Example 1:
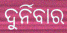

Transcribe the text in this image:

ଦୁର୍ନିବାର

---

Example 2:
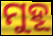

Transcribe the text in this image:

ମୁହୂ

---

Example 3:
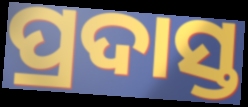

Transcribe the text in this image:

ପ୍ରଦାସ୍ତ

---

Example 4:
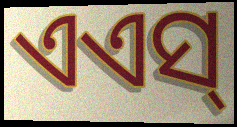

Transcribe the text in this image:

ଏଏସ୍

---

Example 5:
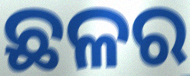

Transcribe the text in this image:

ଛଳର